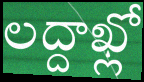
లద్దాఖ్లో